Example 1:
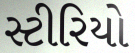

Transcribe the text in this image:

સ્ટીરિયો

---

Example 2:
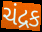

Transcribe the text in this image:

ચંદ્રક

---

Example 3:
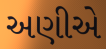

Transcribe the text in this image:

અણીએ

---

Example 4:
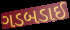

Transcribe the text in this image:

ગડબડાઈ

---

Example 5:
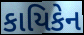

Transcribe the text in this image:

કાયિકેન